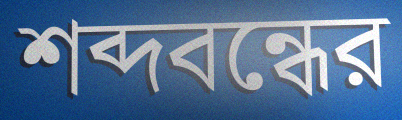
শব্দবন্ধের